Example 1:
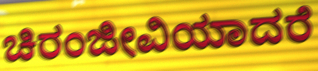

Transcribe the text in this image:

ಚಿರಂಜೀವಿಯಾದರೆ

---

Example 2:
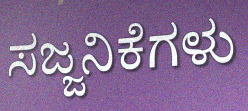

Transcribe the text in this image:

ಸಜ್ಜನಿಕೆಗಳು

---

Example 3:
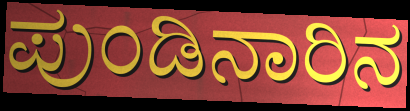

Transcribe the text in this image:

ಪುಂಡಿನಾರಿನ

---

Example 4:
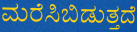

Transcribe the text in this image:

ಮರೆಸಿಬಿಡುತ್ತದೆ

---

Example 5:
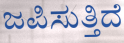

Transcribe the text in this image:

ಜಪಿಸುತ್ತಿದೆ